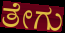
ತೇಗು